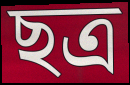
ছত্ৰ